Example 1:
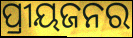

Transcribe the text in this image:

ପ୍ରୀୟଜନର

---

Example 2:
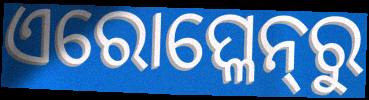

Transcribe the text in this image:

ଏରୋପ୍ଳେନ୍‍ରୁ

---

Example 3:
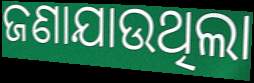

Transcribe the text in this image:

ଜଣାଯାଉଥିଲା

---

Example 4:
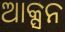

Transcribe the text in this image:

ଆକ୍ସନ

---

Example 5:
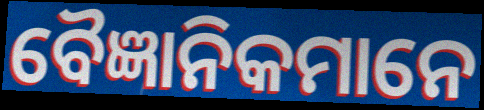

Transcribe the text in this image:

ବୈଜ୍ଞାନିକମାନେ